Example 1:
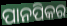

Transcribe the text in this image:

ପାନପିକର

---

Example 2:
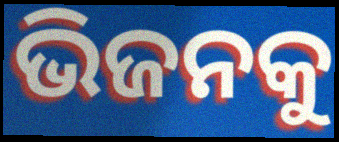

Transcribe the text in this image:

ଭିଜନକୁ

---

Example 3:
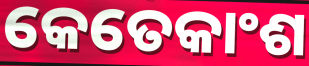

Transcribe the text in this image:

କେତେକାଂଶ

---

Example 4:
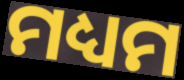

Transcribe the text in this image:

ମଧ୍ୟମ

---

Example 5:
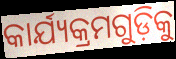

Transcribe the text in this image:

କାର୍ଯ୍ୟକ୍ରମଗୁଡ଼ିକୁ